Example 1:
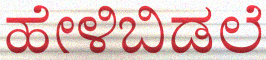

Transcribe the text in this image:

ಹೇಳಿಬಿಡಲೆ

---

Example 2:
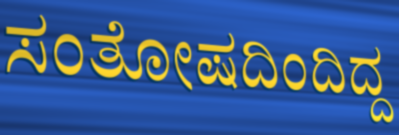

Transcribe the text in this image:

ಸಂತೋಷದಿಂದಿದ್ದ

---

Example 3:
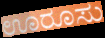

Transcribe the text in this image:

ಊರೂಸು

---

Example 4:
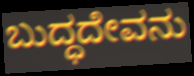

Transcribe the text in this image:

ಬುದ್ಧದೇವನು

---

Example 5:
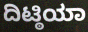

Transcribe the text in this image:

ದಿಟ್ಠಿಯಾ